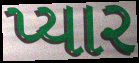
પ્યાર